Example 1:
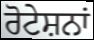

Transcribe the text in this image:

ਰੋਟੇਸ਼ਨਾਂ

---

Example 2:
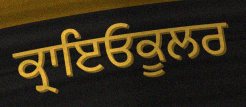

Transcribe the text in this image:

ਕ੍ਰਾਇਓਕੂਲਰ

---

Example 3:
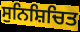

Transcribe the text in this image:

ਸੁਨਿਸ਼ਿਚਿਤ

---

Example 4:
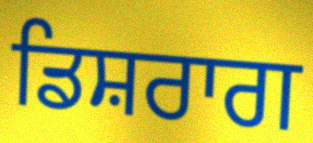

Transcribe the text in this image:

ਡਿਸ਼ਰਾਗ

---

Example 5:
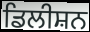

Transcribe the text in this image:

ਡਿਲੀਸ਼ਨ